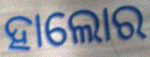
ହାଲୋର